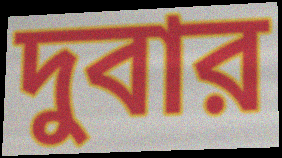
দুবার